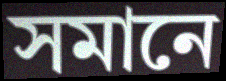
সমানে